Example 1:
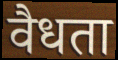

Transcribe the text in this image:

वैधता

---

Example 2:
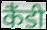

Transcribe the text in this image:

कैंडी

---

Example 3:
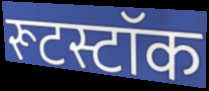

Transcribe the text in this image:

रूटस्टॉक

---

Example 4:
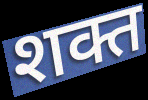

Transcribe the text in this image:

शक्त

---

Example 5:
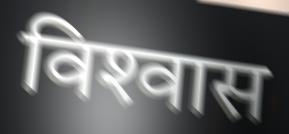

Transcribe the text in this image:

विश्‍वास